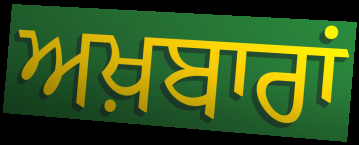
ਅਖ਼ਬਾਰਾਂ